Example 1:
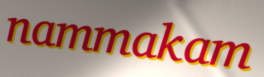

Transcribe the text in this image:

nammakam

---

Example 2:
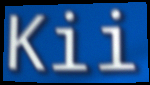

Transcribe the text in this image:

Kii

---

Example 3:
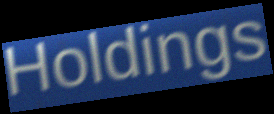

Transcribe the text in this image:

Holdings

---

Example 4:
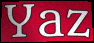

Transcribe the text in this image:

Yaz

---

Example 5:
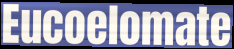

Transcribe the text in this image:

Eucoelomate